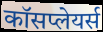
कॉसप्लेयर्स